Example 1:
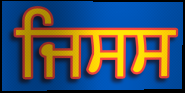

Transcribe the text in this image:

ਜਿਸਸ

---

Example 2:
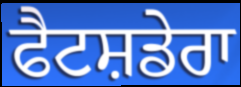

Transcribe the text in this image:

ਫੈਟਸ਼ਡੇਰਾ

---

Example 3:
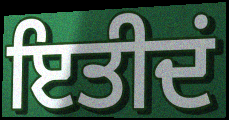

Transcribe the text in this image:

ਇਤੀਦਂ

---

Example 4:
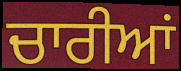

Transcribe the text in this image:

ਚਾਰੀਆਂ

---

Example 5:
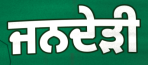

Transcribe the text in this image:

ਜਨਦੇੜੀ